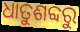
ଧାତୁଶବ୍ଦରୁ